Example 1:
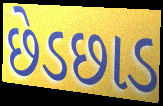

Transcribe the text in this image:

છેડછાડ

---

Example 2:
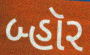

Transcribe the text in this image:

બ્હૉર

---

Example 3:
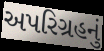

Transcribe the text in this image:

અપરિગ્રહનું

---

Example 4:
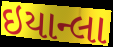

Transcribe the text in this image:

ઇયાન્લા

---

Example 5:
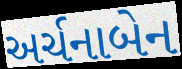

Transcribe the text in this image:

અર્ચનાબેન